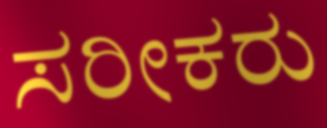
ಸರೀಕರು